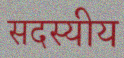
सदस्यीय